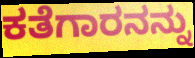
ಕತೆಗಾರನನ್ನು